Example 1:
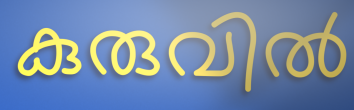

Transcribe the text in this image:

കുരുവിൽ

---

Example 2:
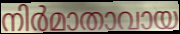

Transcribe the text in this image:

നിർമാതാവായ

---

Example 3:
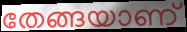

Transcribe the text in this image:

തേങ്ങയാണ്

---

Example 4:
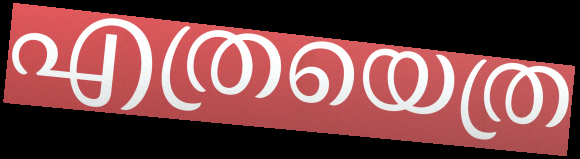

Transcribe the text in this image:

എത്രയെത്ര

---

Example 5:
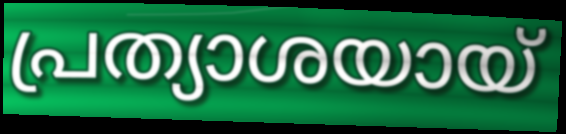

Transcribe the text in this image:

പ്രത്യാശയായ്